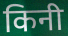
किनी